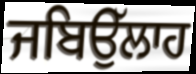
ਜਬਿਉੱਲਾਹ